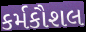
કર્મકૌશલ